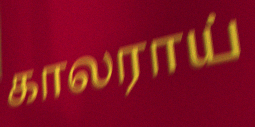
காலராய்